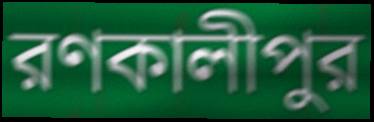
রণকালীপুর